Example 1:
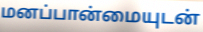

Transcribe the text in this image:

மனப்பான்மையுடன்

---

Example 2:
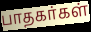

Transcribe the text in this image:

பாதகர்கள்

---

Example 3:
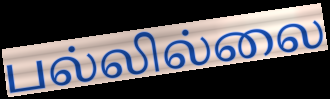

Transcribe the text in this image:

பல்லில்லை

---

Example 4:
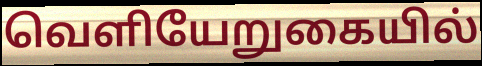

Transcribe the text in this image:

வெளியேறுகையில்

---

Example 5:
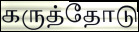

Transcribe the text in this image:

கருத்தோடு